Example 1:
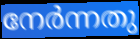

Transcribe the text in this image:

നേർന്നതു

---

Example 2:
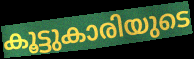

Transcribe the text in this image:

കൂട്ടുകാരിയുടെ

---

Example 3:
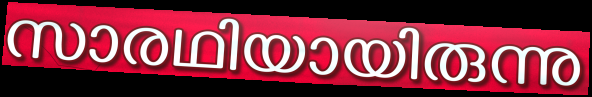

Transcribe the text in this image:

സാരഥിയായിരുന്നു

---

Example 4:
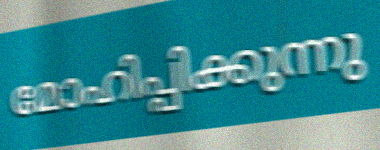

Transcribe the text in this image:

മോഹിപ്പിക്കുന്നു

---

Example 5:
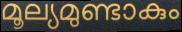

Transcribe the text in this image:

മൂല്യമുണ്ടാകും